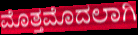
ಮೊತ್ತಮೊದಲಾಗಿ